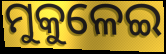
ମୁକୁଳେଇ